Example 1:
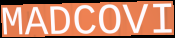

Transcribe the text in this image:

MADCOVI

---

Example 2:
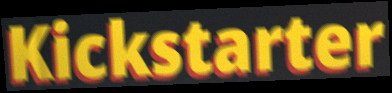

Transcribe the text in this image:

Kickstarter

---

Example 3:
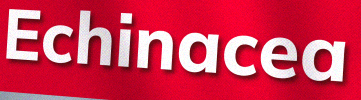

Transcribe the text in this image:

Echinacea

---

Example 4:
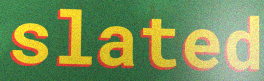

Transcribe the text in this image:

slated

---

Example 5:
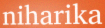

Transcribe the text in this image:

niharika